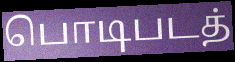
பொடிபடத்